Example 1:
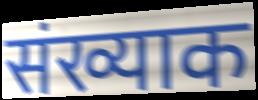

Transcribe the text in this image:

संख्याक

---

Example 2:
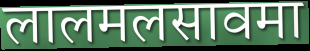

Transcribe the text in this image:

लालमलसावमा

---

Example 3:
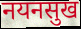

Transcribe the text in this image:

नयनसुख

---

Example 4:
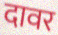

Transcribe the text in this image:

दावर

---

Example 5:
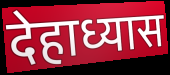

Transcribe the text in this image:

देहाध्यास